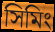
সিমিং